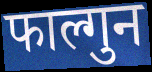
फाल्गुन